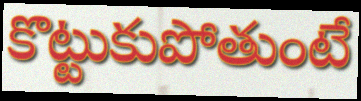
కొట్టుకుపోతుంటే